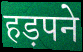
हड़पने